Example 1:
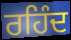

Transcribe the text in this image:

ਰਹਿੰਦ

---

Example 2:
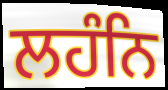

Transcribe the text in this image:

ਲਹੰਨਿ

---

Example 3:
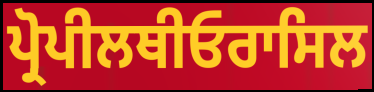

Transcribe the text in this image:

ਪ੍ਰੋਪੀਲਥੀਓਰਾਸਿਲ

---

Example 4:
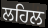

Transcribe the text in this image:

ਲਹਿਲ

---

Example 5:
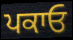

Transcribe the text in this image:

ਪਕਾਓ